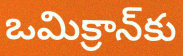
ఒమిక్రాన్‌కు